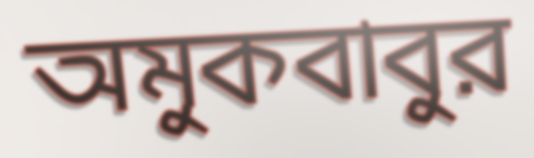
অমুকবাবুর